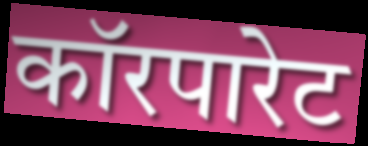
कॉरपारेट